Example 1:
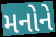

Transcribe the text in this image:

મનોને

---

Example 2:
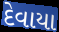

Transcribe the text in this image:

દેવાયા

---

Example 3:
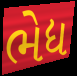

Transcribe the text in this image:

ભેદ્ય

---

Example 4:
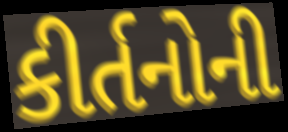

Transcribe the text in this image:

કીર્તનોની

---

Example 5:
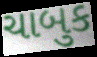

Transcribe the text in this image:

ચાબુક